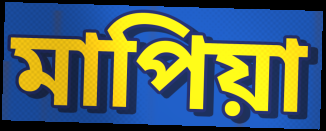
মাপিয়া